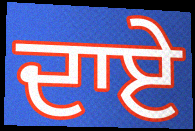
ਦਾਏ